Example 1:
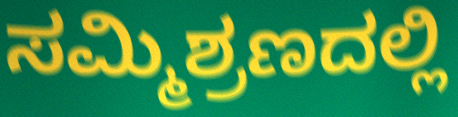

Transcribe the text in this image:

ಸಮ್ಮಿಶ್ರಣದಲ್ಲಿ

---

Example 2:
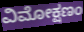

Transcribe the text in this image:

ವಿಮೋಕ್ಷಣಂ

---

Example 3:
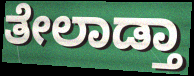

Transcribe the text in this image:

ತೇಲಾಡ್ತಾ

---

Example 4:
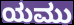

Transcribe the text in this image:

ಯಮು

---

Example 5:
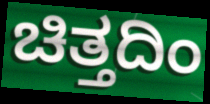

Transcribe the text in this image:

ಚಿತ್ತದಿಂ